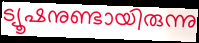
ട്യൂഷനുണ്ടായിരുന്നു